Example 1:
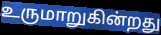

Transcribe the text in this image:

உருமாறுகின்றது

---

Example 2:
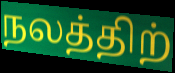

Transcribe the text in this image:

நலத்திற்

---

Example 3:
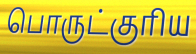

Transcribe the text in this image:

பொருட்குரிய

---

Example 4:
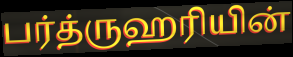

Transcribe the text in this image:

பர்த்ருஹரியின்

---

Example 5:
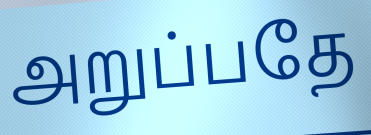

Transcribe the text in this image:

அறுப்பதே